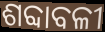
ଶବ୍ଦାବଳୀ